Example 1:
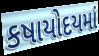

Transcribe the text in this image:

કષાયોદયમાં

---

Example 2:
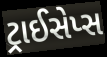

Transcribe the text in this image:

ટ્રાઈસેપ્સ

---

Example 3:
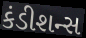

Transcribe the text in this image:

કંડીશન્સ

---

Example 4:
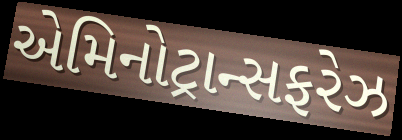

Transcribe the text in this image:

એમિનોટ્રાન્સફરેઝ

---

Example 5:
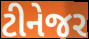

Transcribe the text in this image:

ટીનેજર